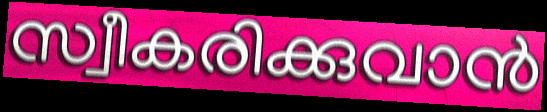
സ്വീകരിക്കുവാൻ